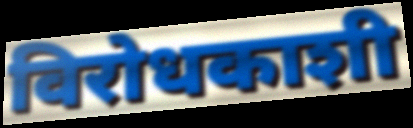
विरोधकाशी